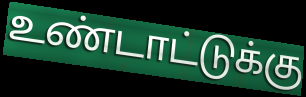
உண்டாட்டுக்கு